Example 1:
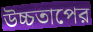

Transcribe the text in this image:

উচ্চতাপের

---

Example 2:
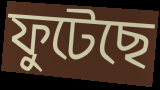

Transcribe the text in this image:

ফুটেছে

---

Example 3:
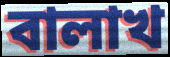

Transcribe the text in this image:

বালাখ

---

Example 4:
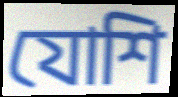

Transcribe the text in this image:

যোশি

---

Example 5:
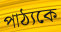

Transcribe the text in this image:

পাঠ্যকে